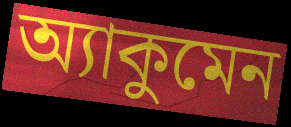
অ্যাকুমেন